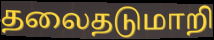
தலைதடுமாறி